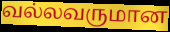
வல்லவருமான